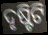
ଦୃଷ୍ଟିଟି